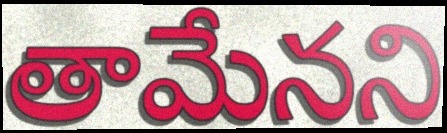
తామేనని